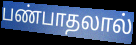
பண்பாதலால்